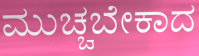
ಮುಚ್ಚಬೇಕಾದ